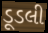
ડૂડલી